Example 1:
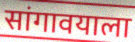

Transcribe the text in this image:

सांगावयाला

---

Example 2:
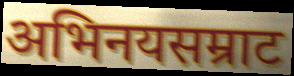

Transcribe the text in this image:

अभिनयसम्राट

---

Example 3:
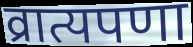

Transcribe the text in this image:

व्रात्यपणा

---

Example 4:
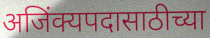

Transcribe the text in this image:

अजिंक्यपदासाठीच्या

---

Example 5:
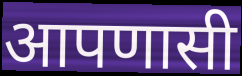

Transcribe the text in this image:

आपणासी